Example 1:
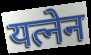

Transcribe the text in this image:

यत्नेन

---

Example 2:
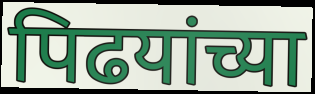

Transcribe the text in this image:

पिढयांच्या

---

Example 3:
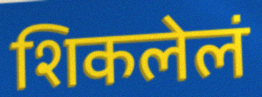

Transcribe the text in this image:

शिकलेलं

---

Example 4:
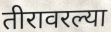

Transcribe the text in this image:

तीरावरल्या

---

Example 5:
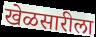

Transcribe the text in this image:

खेळसारीला